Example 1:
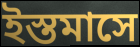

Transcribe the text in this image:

ইস্তমাসে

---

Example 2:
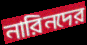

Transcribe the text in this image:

নারিনদের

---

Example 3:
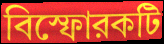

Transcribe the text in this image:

বিস্ফোরকটি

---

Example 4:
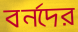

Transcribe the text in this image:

বর্নদের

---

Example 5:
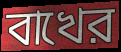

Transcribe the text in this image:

বাখের